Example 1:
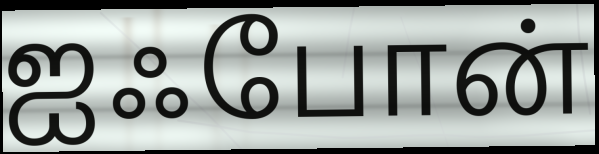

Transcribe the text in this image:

ஐஃபோன்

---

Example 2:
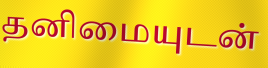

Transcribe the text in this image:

தனிமையுடன்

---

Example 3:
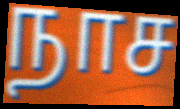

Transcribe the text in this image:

நாச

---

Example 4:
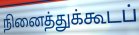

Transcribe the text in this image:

நினைத்துக்கூடப்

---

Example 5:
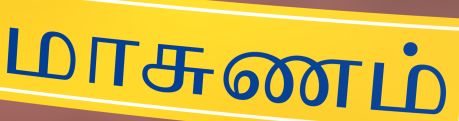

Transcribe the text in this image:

மாசுணம்